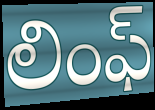
లింఫ్